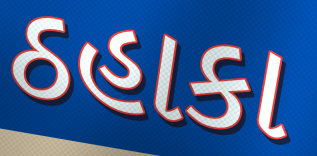
ઠહાકા